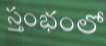
స్తంభంలో